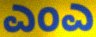
ಎಂಎ